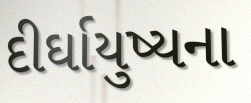
દીર્ઘાયુષ્યના